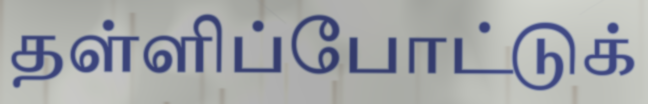
தள்ளிப்போட்டுக்